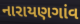
નારાયણગાંવ